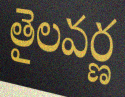
తైలవర్ణ